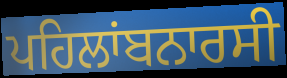
ਪਹਿਲਾਂਬਨਾਰਸੀ